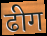
ढीग